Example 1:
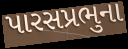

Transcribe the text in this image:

પારસપ્રભુના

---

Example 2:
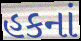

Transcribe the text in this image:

હકનાં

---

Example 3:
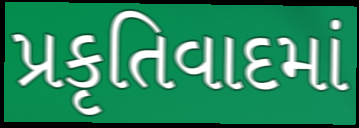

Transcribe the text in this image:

પ્રકૃતિવાદમાં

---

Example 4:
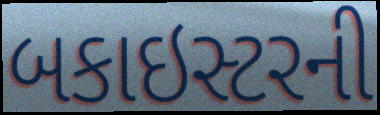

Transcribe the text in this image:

બકાઇસ્ટરની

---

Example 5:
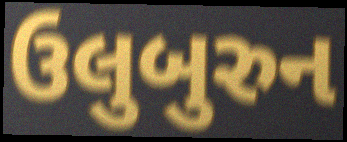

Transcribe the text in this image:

ઉલુબુરુન